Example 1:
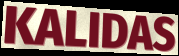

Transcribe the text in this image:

KALIDAS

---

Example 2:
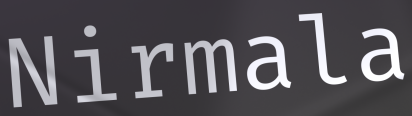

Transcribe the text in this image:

Nirmala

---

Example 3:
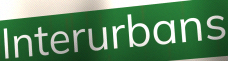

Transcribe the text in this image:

Interurbans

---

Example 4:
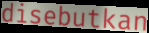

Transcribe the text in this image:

disebutkan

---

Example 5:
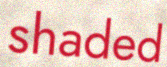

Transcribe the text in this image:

shaded